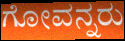
ಗೋವನ್ನರು